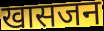
खासजन